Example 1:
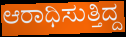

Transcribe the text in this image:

ಆರಾಧಿಸುತ್ತಿದ್ದ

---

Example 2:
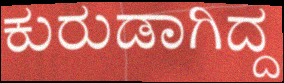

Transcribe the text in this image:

ಕುರುಡಾಗಿದ್ದ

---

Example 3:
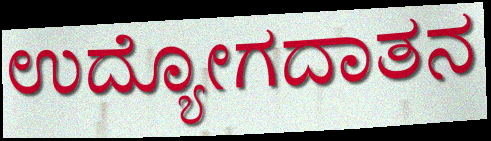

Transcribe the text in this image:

ಉದ್ಯೋಗದಾತನ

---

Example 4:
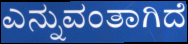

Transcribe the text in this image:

ಎನ್ನುವಂತಾಗಿದೆ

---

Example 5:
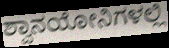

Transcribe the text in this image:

ಶ್ವಾನಯೋನಿಗಳಲ್ಲಿ